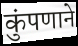
कुंपणाने